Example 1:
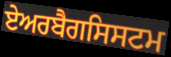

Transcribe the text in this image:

ਏਅਰਬੈਗਸਿਸਟਮ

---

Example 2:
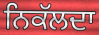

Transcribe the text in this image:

ਨਿਕੱਲਦਾ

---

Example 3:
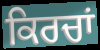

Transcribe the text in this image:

ਕਿਰਚਾਂ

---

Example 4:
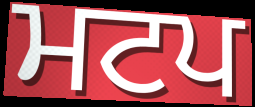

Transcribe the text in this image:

ਮਟਪ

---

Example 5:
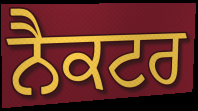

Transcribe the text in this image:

ਨੈਕਟਰ